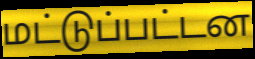
மட்டுப்பட்டன